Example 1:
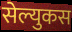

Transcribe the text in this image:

सेल्युकस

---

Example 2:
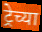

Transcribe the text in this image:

ट्रेच्या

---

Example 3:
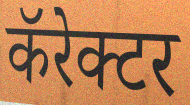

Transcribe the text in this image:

कॅरेक्टर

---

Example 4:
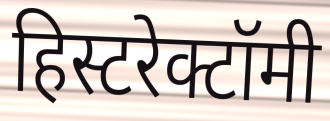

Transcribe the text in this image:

हिस्टरेक्टॉमी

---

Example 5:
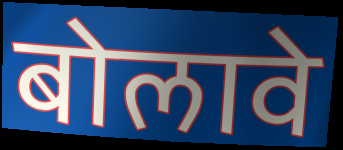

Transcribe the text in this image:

बोलावे